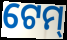
ଟେମ୍